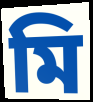
মি